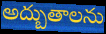
అద్బుతాలను